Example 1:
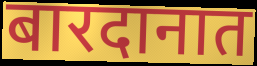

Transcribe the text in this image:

बारदानात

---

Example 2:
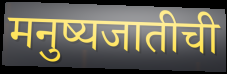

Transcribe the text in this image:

मनुष्यजातीची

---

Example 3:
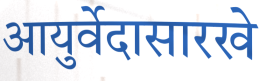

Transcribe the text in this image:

आयुर्वेदासारखे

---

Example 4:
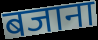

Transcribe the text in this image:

बजाना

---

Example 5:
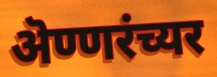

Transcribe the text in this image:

ऄण्णरंच्यर